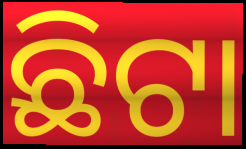
ଛିଟା